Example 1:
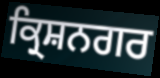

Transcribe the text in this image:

ਕ੍ਰਿਸ਼ਨਗਰ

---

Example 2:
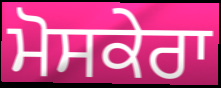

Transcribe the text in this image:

ਮੋਸਕੇਰਾ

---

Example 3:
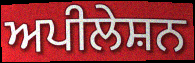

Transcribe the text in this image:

ਅਪੀਲੇਸ਼ਨ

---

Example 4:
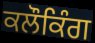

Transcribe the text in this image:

ਕਲੌਕਿੰਗ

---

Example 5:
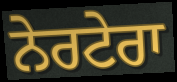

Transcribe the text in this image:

ਨੇਰਟੇਰਾ